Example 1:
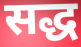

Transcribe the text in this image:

सद्ध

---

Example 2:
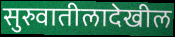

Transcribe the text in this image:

सुरुवातीलादेखील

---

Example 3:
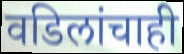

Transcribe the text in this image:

वडिलांचाही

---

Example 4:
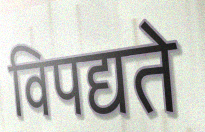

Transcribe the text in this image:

विपद्यते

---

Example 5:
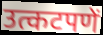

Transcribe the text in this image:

उत्कटपणें